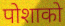
पोशाको